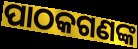
ପାଠକଗଣଙ୍କ